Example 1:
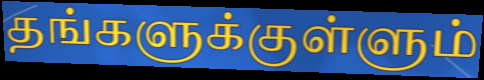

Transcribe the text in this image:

தங்களுக்குள்ளும்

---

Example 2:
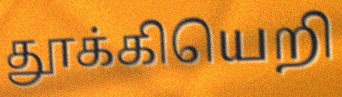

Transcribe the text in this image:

தூக்கியெறி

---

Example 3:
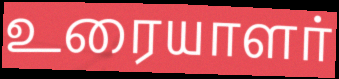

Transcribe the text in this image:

உரையாளர்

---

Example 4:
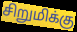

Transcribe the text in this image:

சிறுமிக்கு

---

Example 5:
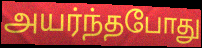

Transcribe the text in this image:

அயர்ந்தபோது